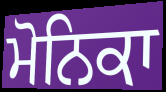
ਮੋਨਿਕਾ